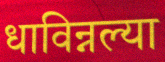
धाविन्नल्या